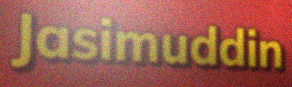
Jasimuddin